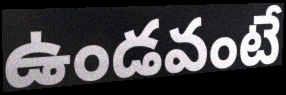
ఉండవంటే